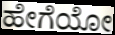
ಹೇಗೆಯೋ